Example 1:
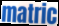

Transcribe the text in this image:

matric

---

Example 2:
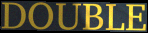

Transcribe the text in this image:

DOUBLE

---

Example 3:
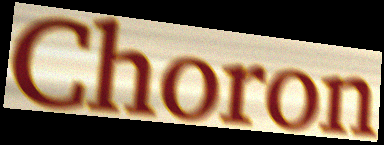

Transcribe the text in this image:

Choron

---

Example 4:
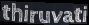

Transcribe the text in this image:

thiruvati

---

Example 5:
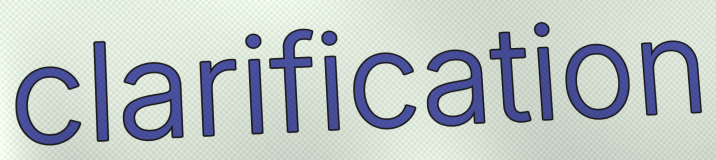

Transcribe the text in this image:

clarification